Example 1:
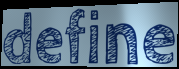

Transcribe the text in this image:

define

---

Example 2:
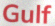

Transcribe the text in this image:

Gulf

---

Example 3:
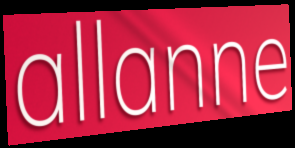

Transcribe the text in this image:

allanne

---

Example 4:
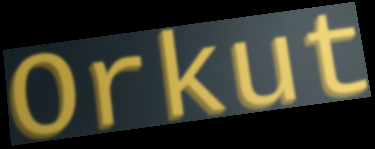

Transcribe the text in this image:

Orkut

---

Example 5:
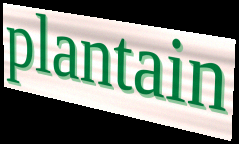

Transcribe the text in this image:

plantain